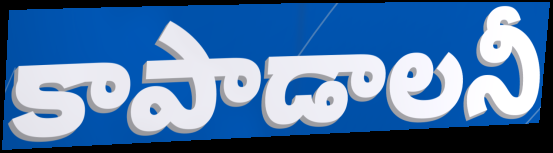
కాపాడాలనీ